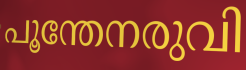
പൂന്തേനരുവി